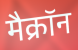
मैक्रॉन